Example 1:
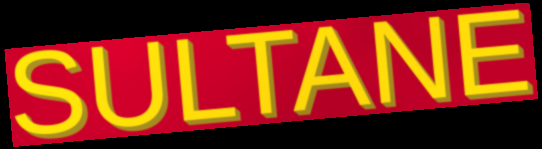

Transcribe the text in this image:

SULTANE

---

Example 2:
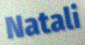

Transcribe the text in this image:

Natali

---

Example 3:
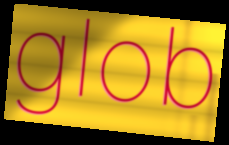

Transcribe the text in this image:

glob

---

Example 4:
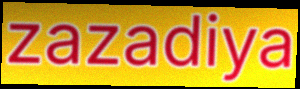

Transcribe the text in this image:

zazadiya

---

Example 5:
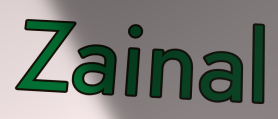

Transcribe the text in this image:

Zainal